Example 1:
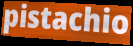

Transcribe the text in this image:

pistachio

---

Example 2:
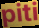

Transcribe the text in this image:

piti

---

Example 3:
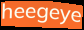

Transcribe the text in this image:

heegeye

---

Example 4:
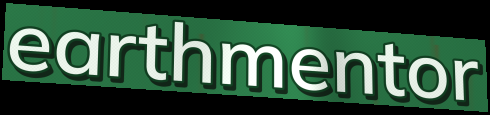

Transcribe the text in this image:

earthmentor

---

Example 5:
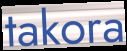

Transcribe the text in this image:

takora